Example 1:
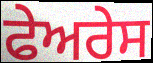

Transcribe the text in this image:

ਫੇਅਰੇਸ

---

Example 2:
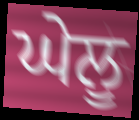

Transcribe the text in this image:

ਘੇਲੂ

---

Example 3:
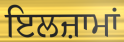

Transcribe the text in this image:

ਇਲਜ਼ਾਮਾਂ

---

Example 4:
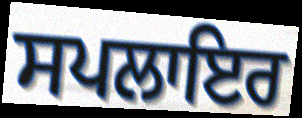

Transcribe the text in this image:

ਸਪਲਾਇਰ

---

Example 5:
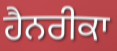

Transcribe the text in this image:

ਹੈਨਰੀਕਾ